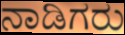
ನಾಡಿಗರು